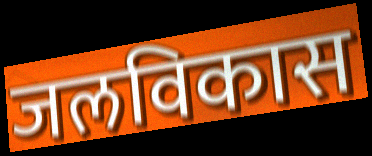
जलविकास